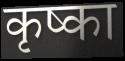
कृष्का